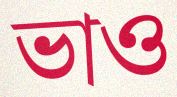
ভাও